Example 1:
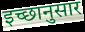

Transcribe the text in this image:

इच्छानुसार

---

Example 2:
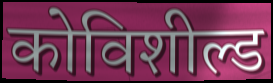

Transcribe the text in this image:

कोविशील्ड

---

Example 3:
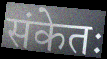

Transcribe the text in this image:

संकेतः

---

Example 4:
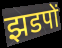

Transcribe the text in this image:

झडपों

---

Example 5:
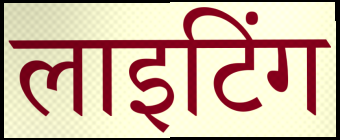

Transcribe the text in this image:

लाइटिंग